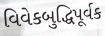
વિવેકબુદ્ધિપૂર્વક